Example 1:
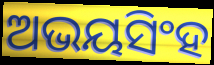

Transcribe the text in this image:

ଅଭୟସିଂହ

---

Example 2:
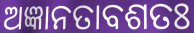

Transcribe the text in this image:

ଅଜ୍ଞାନତାବଶତଃ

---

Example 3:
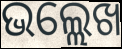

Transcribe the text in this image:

ଭଲ୍ଲେଖ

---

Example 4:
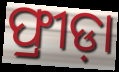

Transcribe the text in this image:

ଫ୍ରୀଡ଼ା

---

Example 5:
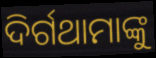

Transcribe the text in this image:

ଦିର୍ଗଥାମାଙ୍କୁ